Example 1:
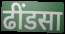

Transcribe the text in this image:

ढींडसा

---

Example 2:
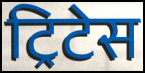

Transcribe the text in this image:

ट्रिटेस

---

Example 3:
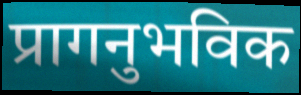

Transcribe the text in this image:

प्रागनुभविक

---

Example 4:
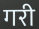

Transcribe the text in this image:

गरी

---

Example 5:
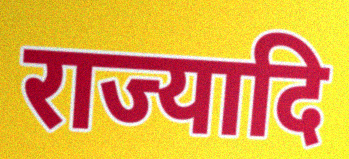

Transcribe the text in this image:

राज्यादि